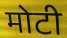
मोटी